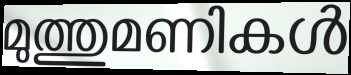
മുത്തുമണികൾ